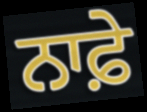
ਨਾਫ਼ੇ